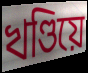
খণ্ডিয়ে